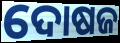
ଦୋଷଜ